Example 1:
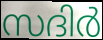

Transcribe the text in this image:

സദിർ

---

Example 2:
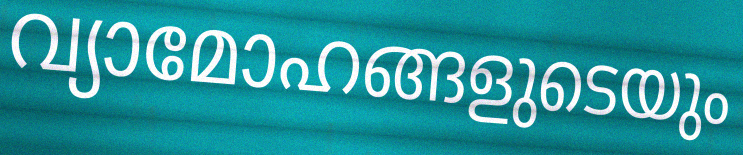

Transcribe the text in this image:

വ്യാമോഹങ്ങളുടെയും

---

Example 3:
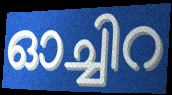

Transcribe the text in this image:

ഓച്ചിറ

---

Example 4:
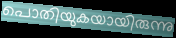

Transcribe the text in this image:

പൊതിയുകയായിരുന്നു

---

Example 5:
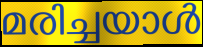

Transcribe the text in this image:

മരിച്ചയാൾ